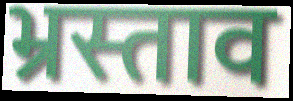
भ्रस्ताव